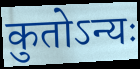
कुतोऽन्यः